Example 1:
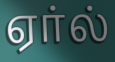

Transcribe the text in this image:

ஏர்ல்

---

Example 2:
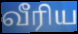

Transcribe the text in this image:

வீரிய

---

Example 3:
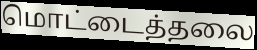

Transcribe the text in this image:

மொட்டைத்தலை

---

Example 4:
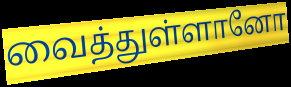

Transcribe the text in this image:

வைத்துள்ளானோ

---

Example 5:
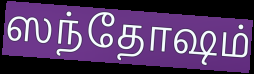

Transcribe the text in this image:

ஸந்தோஷம்